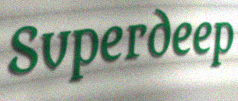
Superdeep